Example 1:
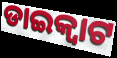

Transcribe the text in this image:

ଡାଇକ୍ଵାଟ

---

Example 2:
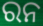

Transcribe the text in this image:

ରନ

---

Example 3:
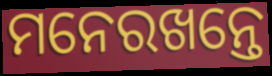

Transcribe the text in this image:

ମନେରଖନ୍ତେ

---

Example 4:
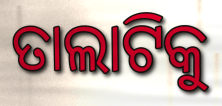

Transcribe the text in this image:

ତାଲାଟିକୁ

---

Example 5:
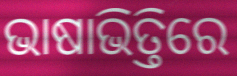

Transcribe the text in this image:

ଭାଷାଭିତ୍ତିରେ